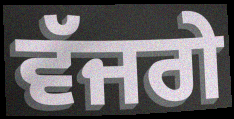
ਵੱਜਗੇ